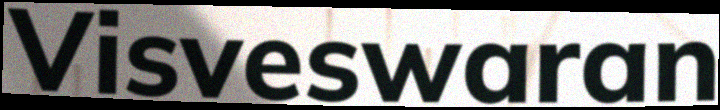
Visveswaran